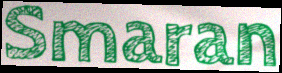
Smaran